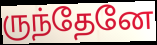
ருந்தேனே